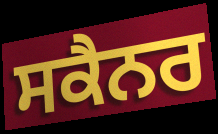
ਸਕੈਨਰ